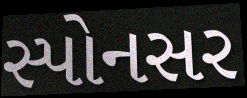
સ્પોનસર